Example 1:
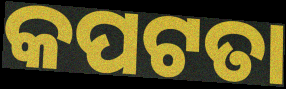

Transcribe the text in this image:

କପଟତା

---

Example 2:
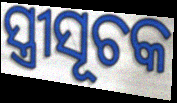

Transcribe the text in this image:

ସ୍ତ୍ରୀସୂଚକ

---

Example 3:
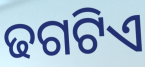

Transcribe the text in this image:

ଢଗଟିଏ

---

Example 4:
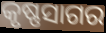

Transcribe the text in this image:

କୃଷ୍ଣସାଗର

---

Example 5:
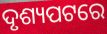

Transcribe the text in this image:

ଦୃଶ୍ୟପଟରେ